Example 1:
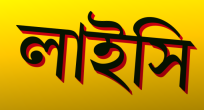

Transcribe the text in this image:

লাইসি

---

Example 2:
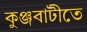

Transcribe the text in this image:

কুঞ্জবাটীতে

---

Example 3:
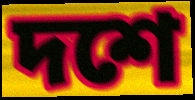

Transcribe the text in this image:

দশে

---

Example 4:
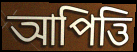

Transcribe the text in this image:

আপিত্তি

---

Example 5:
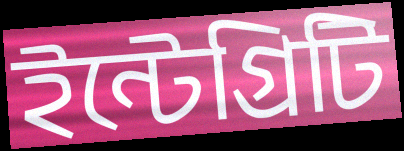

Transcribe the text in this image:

ইন্টেগ্রিটি